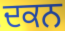
ਦਕਨ